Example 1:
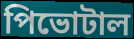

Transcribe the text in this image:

পিভোটাল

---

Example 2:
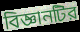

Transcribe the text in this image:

বিজ্ঞানটির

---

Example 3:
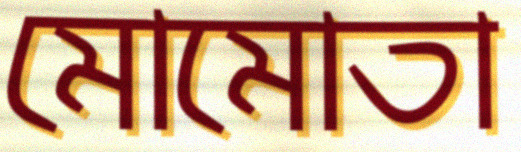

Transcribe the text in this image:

মোমোতা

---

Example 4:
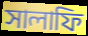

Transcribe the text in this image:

সালাফি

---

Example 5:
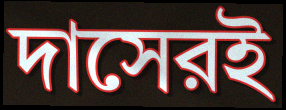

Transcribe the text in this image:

দাসেরই